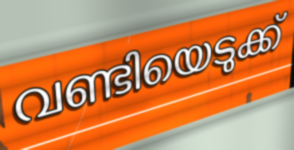
വണ്ടിയെടുക്ക്